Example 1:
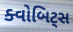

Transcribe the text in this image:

ક્વોબિટ્સ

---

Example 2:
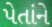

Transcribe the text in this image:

પેતાંને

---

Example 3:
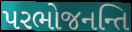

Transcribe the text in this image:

પરભોજનન્તિ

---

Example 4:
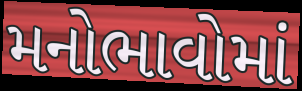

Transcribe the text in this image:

મનોભાવોમાં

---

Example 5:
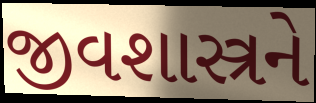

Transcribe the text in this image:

જીવશાસ્ત્રને